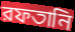
রফতানি